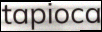
tapioca